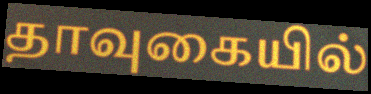
தாவுகையில்